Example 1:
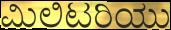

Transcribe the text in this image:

ಮಿಲಿಟರಿಯು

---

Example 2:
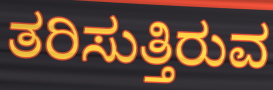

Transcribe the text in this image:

ತರಿಸುತ್ತಿರುವ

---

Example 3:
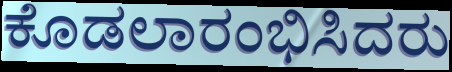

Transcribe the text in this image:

ಕೊಡಲಾರಂಭಿಸಿದರು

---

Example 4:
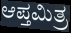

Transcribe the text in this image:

ಆಪ್ತಮಿತ್ರ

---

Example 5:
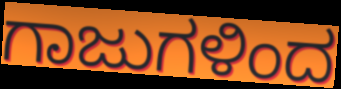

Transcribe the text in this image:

ಗಾಜುಗಳಿಂದ